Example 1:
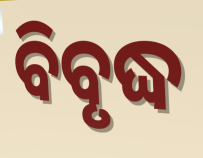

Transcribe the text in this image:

ବିବୃଦ୍ଧ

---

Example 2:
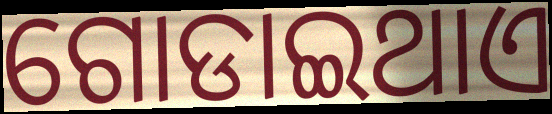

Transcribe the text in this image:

ଗୋଡାଇଥାଏ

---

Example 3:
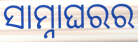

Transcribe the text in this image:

ସାମ୍ନାଘରର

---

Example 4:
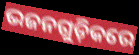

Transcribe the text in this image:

ଭଜନଗୁଡ଼ିକରେ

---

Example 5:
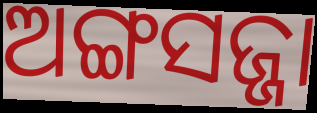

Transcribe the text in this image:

ଅଙ୍ଗସଜ୍ଜା